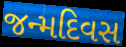
જન્મદિવસ